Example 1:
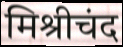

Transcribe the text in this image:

मिश्रीचंद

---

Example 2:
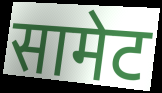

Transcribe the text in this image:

सामेट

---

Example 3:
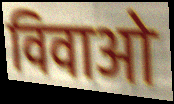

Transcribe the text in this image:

विवाओ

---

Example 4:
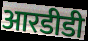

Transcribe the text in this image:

आरडीडी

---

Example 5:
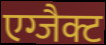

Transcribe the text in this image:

एग्जैक्ट